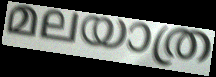
മലയാത്ര